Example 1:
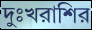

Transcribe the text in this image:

দুঃখরাশির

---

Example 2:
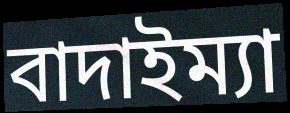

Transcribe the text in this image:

বাদাইম্যা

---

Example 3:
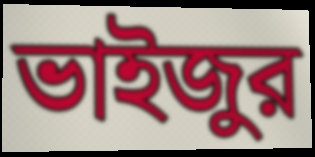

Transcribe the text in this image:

ভাইজুর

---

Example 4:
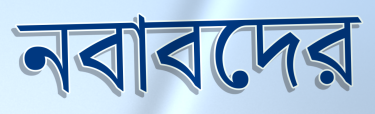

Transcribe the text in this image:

নবাবদের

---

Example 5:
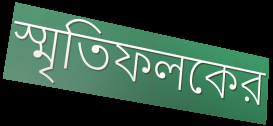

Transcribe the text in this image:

স্মৃতিফলকের